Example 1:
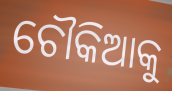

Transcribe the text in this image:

ଚୌକିଆକୁ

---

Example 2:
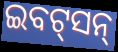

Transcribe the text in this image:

ଇବଟ୍‌ସନ୍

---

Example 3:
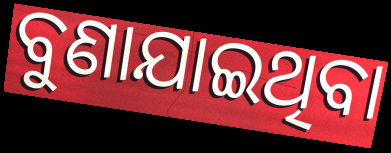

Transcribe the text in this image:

ବୁଣାଯାଇଥିବା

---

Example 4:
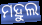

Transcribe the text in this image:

ମହୁଲ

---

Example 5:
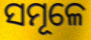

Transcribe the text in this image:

ସମୂଳେ